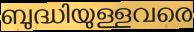
ബുദ്ധിയുള്ളവരെ